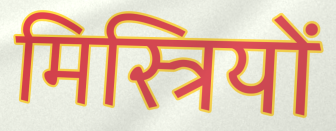
मिस्त्रियों